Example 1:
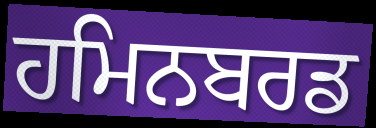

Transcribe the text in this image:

ਹਮਿਨਬਰਡ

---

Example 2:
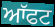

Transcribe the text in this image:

ਆੱਫਟ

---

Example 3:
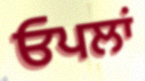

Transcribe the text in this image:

ਓਪਲਾਂ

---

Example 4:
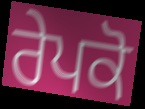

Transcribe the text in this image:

ਰੇਪਕੋ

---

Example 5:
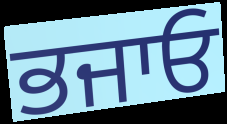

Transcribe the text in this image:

ਭਜਾਓ